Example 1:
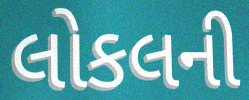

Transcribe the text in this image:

લોકલની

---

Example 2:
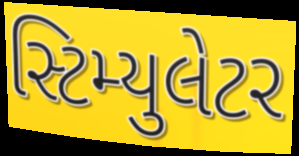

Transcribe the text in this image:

સ્ટિમ્યુલેટર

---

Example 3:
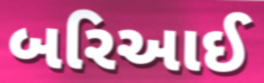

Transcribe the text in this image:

બરિઆઈ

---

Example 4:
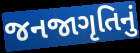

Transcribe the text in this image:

જનજાગૃતિનું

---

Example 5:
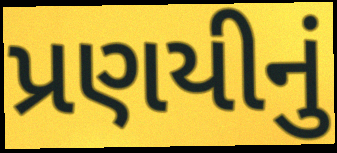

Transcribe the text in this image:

પ્રણયીનું